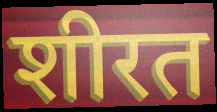
शीरत